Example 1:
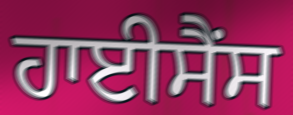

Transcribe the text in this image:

ਹਾਈਸੈਂਸ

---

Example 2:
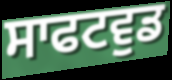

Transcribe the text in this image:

ਸਾਫਟਵੁਡ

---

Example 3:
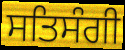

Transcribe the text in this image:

ਸਤਿਸੰਗੀ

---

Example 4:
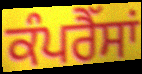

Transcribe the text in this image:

ਕੰਪਰੈੱਸਾਂ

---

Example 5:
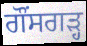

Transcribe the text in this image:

ਗੌਂਸਗੜ੍ਹ